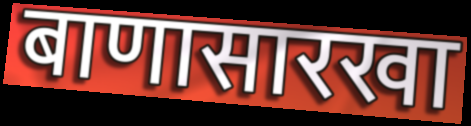
बाणासारखा